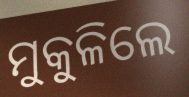
ମୁକୁଳିଲେ